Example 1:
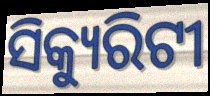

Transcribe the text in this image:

ସିକ୍ୟୁରିଟୀ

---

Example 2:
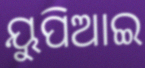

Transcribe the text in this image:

ୟୁପିଆଇ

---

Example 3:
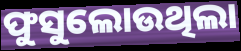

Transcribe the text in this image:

ଫୁସୁଲୋଉଥିଲା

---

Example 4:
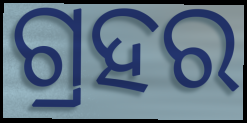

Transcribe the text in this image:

ଗ୍ରହର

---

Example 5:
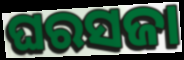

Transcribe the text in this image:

ଘରସଜା